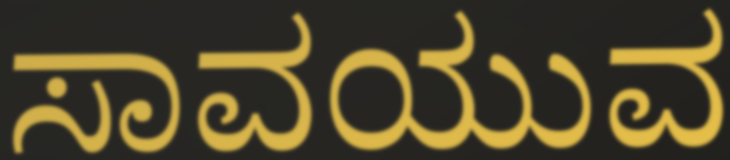
ಸಾವಯುವ